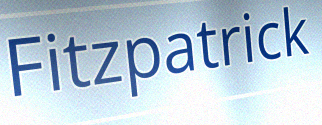
Fitzpatrick